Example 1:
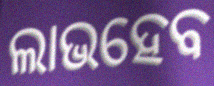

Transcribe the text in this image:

ଲାଭହେବ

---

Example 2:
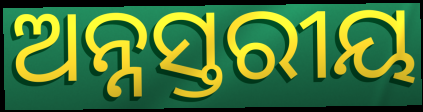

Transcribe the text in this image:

ଅନ୍ନସ୍ତରୀୟ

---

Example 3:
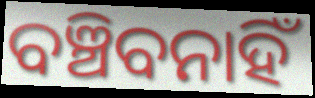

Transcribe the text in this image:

ବଞ୍ଚିବନାହିଁ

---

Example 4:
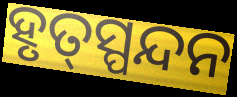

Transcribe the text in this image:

ହୃତ୍‍ସ୍ପନ୍ଦନ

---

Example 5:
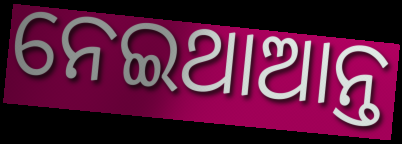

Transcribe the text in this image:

ନେଇଥାଆନ୍ତ